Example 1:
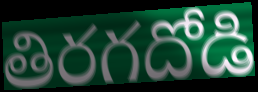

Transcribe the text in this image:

తిరగదోడి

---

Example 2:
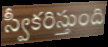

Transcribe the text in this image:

స్వీకరిస్తుంది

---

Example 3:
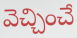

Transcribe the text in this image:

వెచ్చించే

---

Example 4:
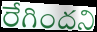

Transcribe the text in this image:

రేగిందని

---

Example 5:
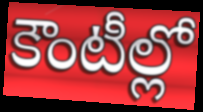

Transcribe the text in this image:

కౌంటీల్లో